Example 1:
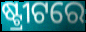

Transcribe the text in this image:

ଷ୍ଟ୍ରୀଟରେ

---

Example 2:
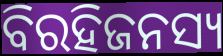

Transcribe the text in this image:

ବିରହିଜନସ୍ୟ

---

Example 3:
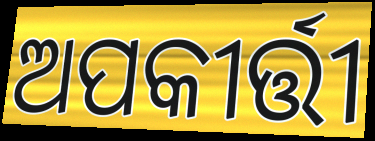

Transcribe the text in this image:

ଅପକୀର୍ତ୍ତୀ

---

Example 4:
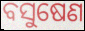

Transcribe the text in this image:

ବସୁଷେଣ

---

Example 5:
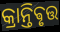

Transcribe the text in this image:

କ୍ରାନ୍ତିଵୃତ୍ତ